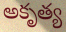
అకృత్య